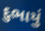
દુભાયું